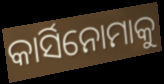
କାର୍ସିନୋମାକୁ